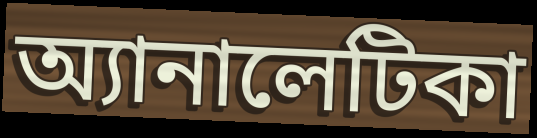
অ্যানালেটিকা